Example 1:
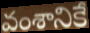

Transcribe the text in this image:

వంశానికే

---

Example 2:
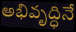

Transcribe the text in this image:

అభివృద్ధినే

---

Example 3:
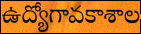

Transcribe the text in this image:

ఉద్యోగావకాశాల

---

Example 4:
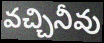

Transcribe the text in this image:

వచ్చినీవు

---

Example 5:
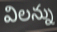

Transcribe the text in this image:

విలన్ను